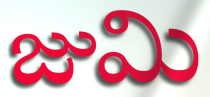
జుమి